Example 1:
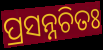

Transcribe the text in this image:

ପ୍ରସନ୍ନଚିତଃ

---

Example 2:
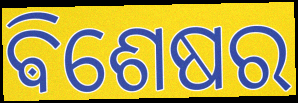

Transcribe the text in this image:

ଵିଶେଷର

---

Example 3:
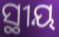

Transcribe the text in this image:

ସ୍ଥୀୟ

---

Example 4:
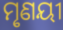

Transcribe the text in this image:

ମୃଣୟୀ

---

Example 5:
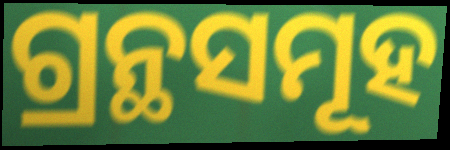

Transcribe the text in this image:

ଗ୍ରନ୍ଥସମୂହ